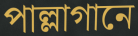
পাল্লাগানে